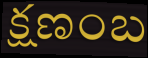
క్షణంబ